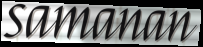
samanan